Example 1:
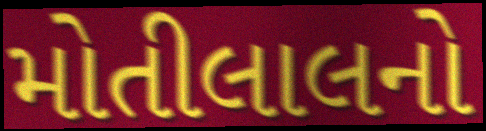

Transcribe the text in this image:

મોતીલાલનો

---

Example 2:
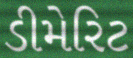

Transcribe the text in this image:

ડીમેરિટ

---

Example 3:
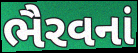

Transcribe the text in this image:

ભૈરવનાં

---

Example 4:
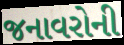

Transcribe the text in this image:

જનાવરોની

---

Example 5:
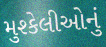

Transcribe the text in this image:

મુશ્કેલીઓનું